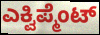
ಎಕ್ವಿಪ್ಮೆಂಟ್